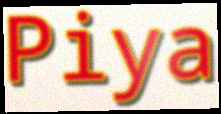
Piya